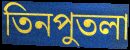
তিনপুতলা